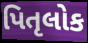
પિતૃલોક